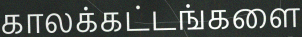
காலக்கட்டங்களை